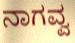
ನಾಗವ್ವ